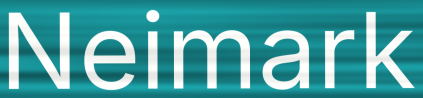
Neimark